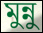
মুন্নু